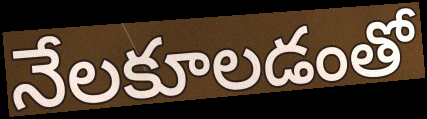
నేలకూలడంతో